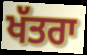
ਖੱਤਰਾ